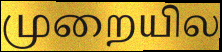
முறையில